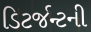
ડિટર્જન્ટની